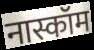
नास्कॉम